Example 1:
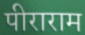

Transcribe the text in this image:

पीराराम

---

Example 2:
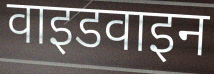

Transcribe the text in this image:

वाइडवाइन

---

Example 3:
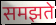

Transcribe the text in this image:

समझते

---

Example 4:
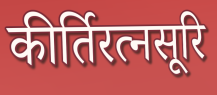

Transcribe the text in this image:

कीर्तिरत्नसूरि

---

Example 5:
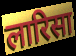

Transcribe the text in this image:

लारिसा